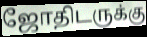
ஜோதிடருக்கு